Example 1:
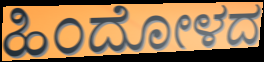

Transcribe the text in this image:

ಹಿಂದೋಳದ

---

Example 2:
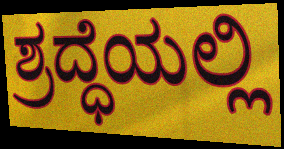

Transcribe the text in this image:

ಶ್ರದ್ಧೆಯಲ್ಲಿ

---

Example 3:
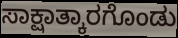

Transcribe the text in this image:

ಸಾಕ್ಷಾತ್ಕಾರಗೊಂಡು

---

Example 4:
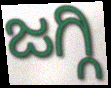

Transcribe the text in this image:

ಜಗ್ಗಿ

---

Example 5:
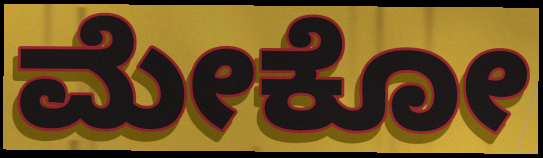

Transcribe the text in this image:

ಮೇಕೋ